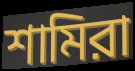
শামিরা